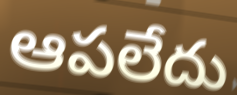
ఆపలేదు